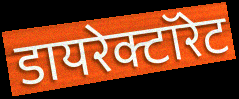
डायरेक्टॉरेट